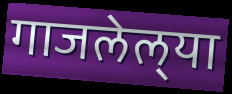
गाजलेल्या